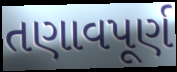
તણાવપૂર્ણ